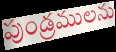
పుండ్రములను